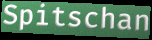
Spitschan